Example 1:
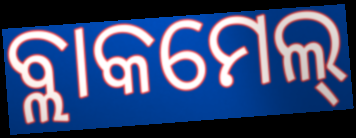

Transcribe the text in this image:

ବ୍ଲାକମେଲ୍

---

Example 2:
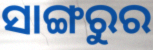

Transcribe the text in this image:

ସାଙ୍ଗରୁର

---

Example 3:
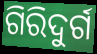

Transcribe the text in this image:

ଗିରିଦୁର୍ଗ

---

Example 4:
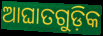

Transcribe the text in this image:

ଆଘାତଗୁଡ଼ିକ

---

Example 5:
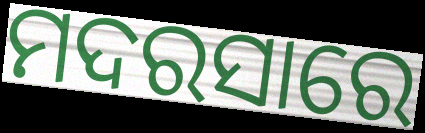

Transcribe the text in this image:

ମଦରସାରେ